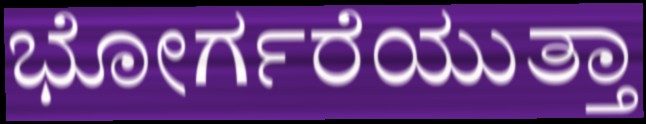
ಭೋರ್ಗರೆಯುತ್ತಾ